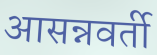
आसन्नवर्ती